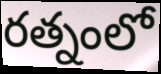
రత్నంలో